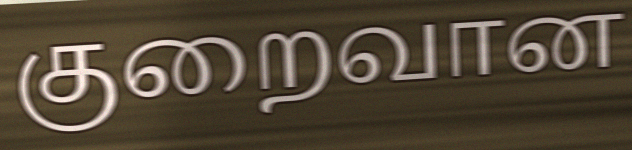
குறைவான